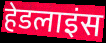
हेडलाइंस